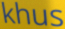
khus